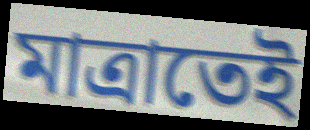
মাত্রাতেই